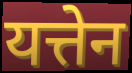
यत्तेन